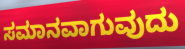
ಸಮಾನವಾಗುವುದು